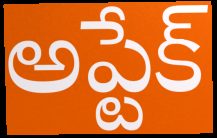
అప్టేక్